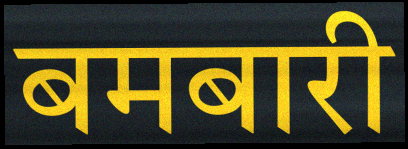
बमबारी